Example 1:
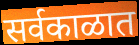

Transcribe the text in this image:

सर्वकाळात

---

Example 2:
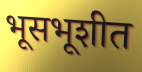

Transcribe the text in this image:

भूसभूशीत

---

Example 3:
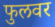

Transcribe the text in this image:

फुलवर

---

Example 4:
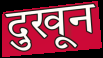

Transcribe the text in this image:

दुखून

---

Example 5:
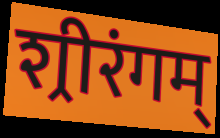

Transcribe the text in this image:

श्रीरंगम्